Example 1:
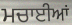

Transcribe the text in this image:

ਮਚਾਈਆਂ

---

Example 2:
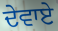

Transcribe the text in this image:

ਦੇਵਾਏ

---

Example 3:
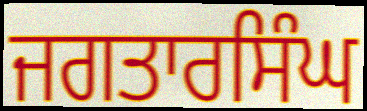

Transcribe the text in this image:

ਜਗਤਾਰਸਿੰਘ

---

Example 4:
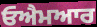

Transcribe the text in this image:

ਓਐਮਆਰ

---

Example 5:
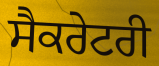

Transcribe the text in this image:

ਸੈਕਰੇਟਰੀ